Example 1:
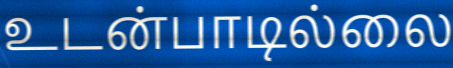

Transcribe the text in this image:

உடன்பாடில்லை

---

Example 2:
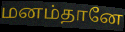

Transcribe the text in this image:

மனம்தானே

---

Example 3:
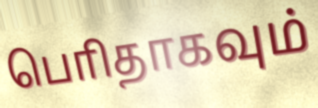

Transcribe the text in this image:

பெரிதாகவும்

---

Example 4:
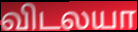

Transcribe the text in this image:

விடலயா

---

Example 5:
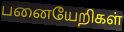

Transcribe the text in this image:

பனையேறிகள்